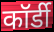
कॉर्डी